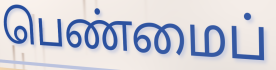
பெண்மைப்